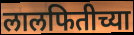
लालफितीच्या